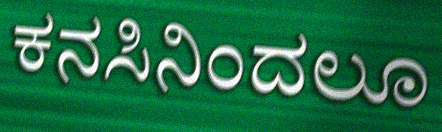
ಕನಸಿನಿಂದಲೂ